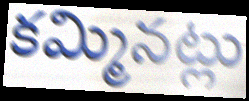
కమ్మినట్లు